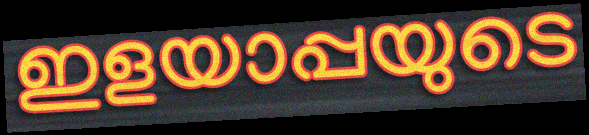
ഇളയാപ്പയുടെ